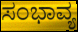
ಸಂಭಾವ್ಯ